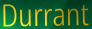
Durrant